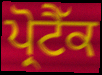
ਪ੍ਰੋਟੈੱਕ